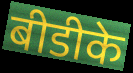
बीडीके